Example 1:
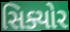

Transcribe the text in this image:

સિક્યોર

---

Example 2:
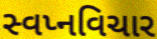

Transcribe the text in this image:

સ્વપ્નવિચાર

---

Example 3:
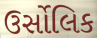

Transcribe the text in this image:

ઉર્સોલિક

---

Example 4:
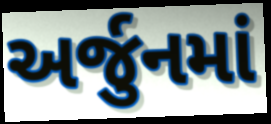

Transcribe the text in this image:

અર્જુનમાં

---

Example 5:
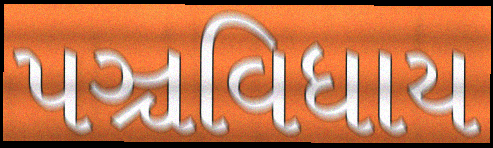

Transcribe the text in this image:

પઞ્ચવિધાય